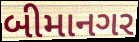
બીમાનગર